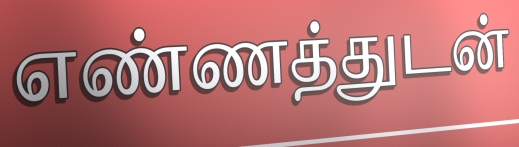
எண்ணத்துடன்